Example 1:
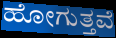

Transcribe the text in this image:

ಹೋಗುತ್ತವೆ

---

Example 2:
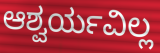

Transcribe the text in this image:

ಆಶ್ವರ್ಯವಿಲ್ಲ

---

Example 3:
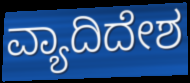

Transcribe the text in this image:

ವ್ಯಾದಿದೇಶ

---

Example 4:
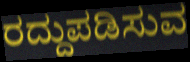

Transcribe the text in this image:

ರದ್ದುಪಡಿಸುವ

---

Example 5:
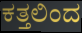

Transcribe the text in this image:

ಕತ್ತಲಿಂದ